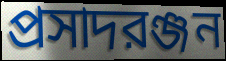
প্রসাদরঞ্জন